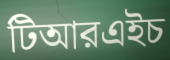
টিআরএইচ